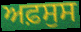
ਅਫ਼ਸੁਸ